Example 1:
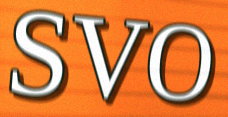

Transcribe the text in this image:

SVO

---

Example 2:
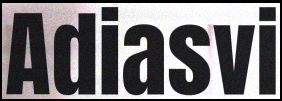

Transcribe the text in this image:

Adiasvi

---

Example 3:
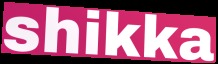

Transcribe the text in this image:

shikka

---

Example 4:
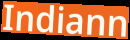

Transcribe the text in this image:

Indiann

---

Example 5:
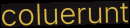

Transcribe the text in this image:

coluerunt